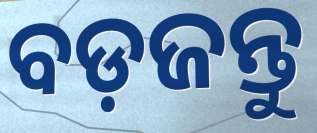
ବଡ଼ଜନ୍ତୁ